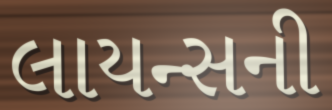
લાયન્સની